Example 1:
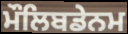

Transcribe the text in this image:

ਮੌਲਿਬਡੇਨਮ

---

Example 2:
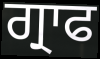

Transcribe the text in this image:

ਗ੍ਰਾਫ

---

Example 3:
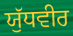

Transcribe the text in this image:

ਯੁੱਧਵੀਰ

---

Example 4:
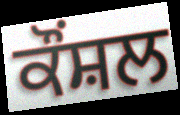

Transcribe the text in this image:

ਕੌਂਸ਼ਲ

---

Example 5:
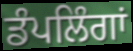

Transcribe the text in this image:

ਡੰਪਲਿੰਗਾਂ